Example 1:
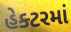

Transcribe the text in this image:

હેક્ટરમાં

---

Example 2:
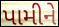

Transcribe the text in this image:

પામીને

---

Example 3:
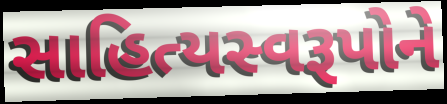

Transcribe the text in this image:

સાહિત્યસ્વરૂપોને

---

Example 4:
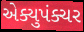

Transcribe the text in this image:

એક્યુપંક્ચર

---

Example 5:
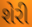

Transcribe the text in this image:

શેરી